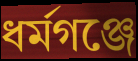
ধর্মগঞ্জে